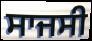
ਸਾਜਸੀ